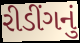
રીડીંગનું